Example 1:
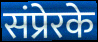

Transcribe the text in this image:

संप्रेरके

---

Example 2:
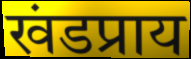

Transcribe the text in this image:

खंडप्राय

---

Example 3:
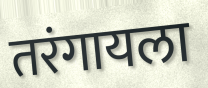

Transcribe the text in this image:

तरंगायला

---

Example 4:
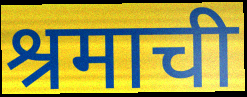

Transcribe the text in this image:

श्रमाची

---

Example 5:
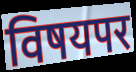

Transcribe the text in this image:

विषयपर